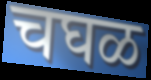
चघळ